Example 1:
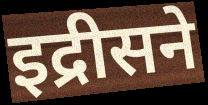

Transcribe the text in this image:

इद्रीसने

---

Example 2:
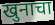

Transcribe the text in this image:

खुनाचा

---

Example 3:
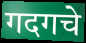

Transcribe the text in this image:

गदगचे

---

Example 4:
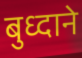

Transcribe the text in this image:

बुध्दाने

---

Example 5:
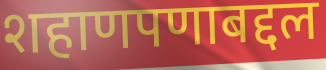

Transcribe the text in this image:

शहाणपणाबद्दल